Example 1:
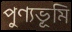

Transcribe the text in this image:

পুণ্যভূমি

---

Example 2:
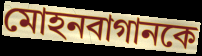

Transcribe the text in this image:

মোহনবাগানকে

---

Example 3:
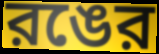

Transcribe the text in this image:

রঙের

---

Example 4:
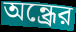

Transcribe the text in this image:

অন্ধ্রের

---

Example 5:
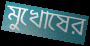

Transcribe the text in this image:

মুখোষের